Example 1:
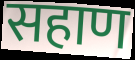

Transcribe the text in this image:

सहाण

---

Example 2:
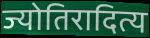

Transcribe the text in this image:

ज्योतिरादित्य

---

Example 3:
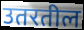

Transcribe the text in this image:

उतरतील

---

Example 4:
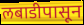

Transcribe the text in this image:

लबाडीपासून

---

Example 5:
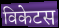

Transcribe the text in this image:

विकेटस